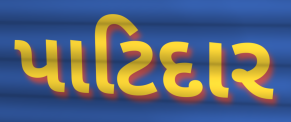
પાટિદાર